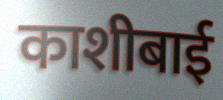
काशीबाई